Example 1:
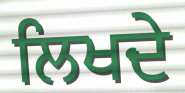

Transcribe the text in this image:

ਲਿਖਦੇ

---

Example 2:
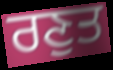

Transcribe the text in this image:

ਰਣੁਤ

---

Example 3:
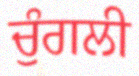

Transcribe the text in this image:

ਚੁੰਗਲੀ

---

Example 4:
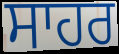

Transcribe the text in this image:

ਸਾਹਰ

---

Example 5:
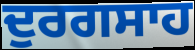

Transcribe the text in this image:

ਦੁਰਗਸਾਹ